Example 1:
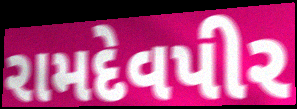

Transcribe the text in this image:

રામદેવપીર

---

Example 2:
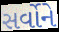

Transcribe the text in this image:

સર્વોને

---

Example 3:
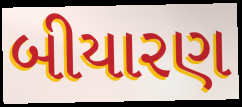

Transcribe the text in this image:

બીયારણ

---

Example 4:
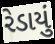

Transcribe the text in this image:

રેડાયું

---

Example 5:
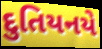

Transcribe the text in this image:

દુતિયનયે